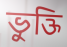
ভুক্তি